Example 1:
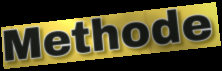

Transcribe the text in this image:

Methode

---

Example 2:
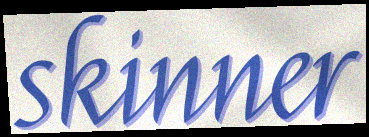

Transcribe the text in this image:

skinner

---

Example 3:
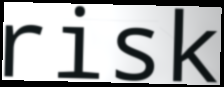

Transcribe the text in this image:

risk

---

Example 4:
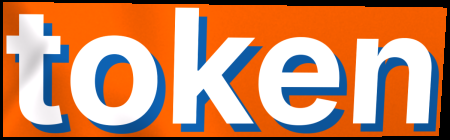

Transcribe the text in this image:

token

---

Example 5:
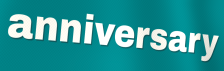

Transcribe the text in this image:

anniversary